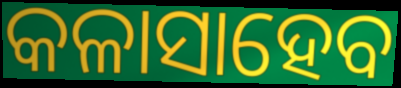
କଳାସାହେବ